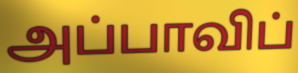
அப்பாவிப்